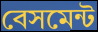
বেসমেন্ট